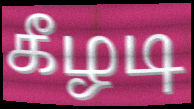
கீழடி